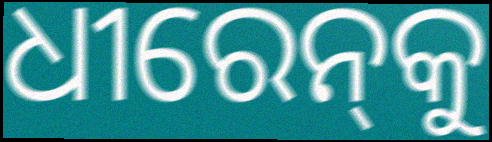
ଧୀରେନ୍‌କୁ